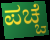
ಪಚ್ಚೆ